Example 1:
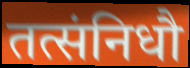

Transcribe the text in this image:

तत्संनिधौ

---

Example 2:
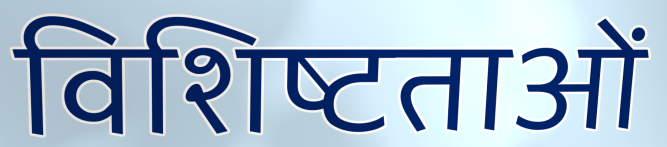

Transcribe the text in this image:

विशिष्‍टताओं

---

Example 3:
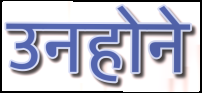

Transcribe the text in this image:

उनहोने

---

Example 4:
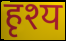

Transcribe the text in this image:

हृश्य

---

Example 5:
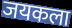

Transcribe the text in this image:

जयकला